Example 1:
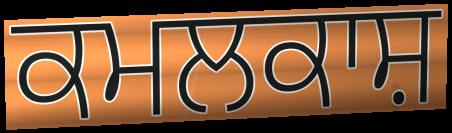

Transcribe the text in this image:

ਕਮਲਕਾਸ਼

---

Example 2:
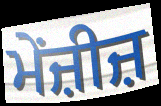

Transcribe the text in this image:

ਮੇਂਜ਼ੀਜ਼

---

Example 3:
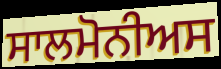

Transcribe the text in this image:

ਸਾਲਮੋਨੀਅਸ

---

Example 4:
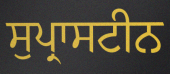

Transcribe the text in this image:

ਸੁਪ੍ਰਾਸਟੀਨ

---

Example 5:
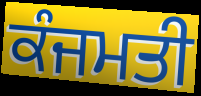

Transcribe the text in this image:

ਕੰਜਮਤੀ